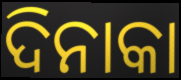
ଦିନାକା